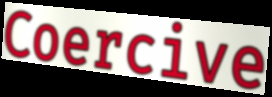
Coercive